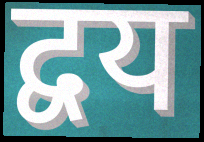
द्वय